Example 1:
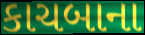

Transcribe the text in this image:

કાચબાના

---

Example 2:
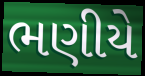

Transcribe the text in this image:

ભણીયે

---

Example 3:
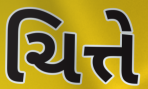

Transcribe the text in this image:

ચિત્તે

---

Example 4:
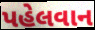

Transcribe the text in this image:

પહેલવાન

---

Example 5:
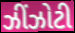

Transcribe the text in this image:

ઝીંઝોટી